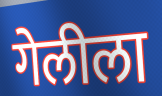
गेलीला